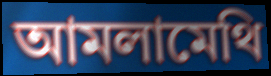
আমলামেথি